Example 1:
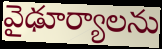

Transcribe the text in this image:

వైఢూర్యాలను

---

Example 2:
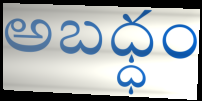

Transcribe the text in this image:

అబధ్ధం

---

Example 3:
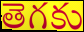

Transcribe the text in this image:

తెగకు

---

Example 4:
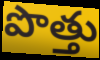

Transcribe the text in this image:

పొత్తు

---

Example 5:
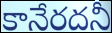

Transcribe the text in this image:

కానేరదనీ